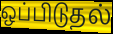
ஒப்பிடுதல்